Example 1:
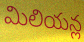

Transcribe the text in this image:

మిలియన్ల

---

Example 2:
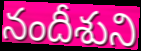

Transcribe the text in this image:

నందీశుని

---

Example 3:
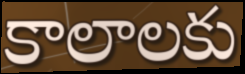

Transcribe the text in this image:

కాలాలకు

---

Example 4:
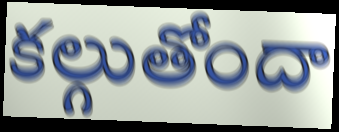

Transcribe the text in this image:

కల్గుతోందా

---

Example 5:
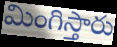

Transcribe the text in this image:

మింగిస్తారు